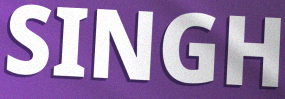
SINGH